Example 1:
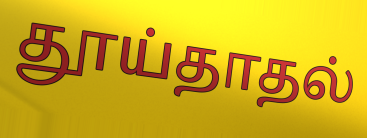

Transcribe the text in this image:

தூய்தாதல்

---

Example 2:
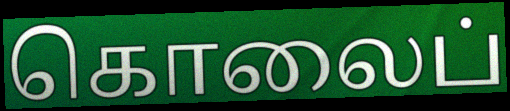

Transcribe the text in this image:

கொலைப்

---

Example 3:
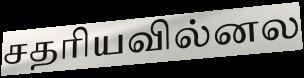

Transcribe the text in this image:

சதரியவில்னல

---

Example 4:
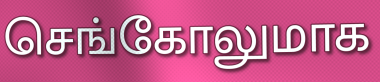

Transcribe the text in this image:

செங்கோலுமாக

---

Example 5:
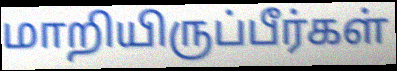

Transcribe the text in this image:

மாறியிருப்பீர்கள்